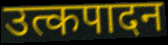
उत्कपादन